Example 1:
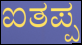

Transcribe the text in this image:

ಐತಪ್ಪ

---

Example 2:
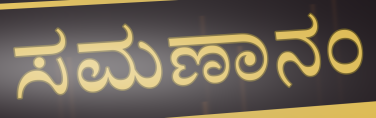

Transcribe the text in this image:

ಸಮಣಾನಂ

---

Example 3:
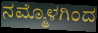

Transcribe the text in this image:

ನಮ್ಮೊಳಗಿಂದ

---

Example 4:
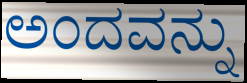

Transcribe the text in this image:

ಅಂದವನ್ನು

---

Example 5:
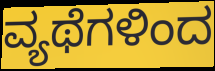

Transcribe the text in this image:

ವ್ಯಥೆಗಳಿಂದ